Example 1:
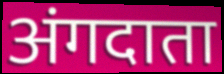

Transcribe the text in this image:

अंगदाता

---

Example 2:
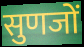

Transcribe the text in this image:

सुणजों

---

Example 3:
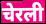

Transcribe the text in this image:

चेरली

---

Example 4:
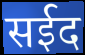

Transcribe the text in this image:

सईद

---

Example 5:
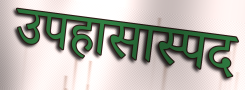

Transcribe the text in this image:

उपहासास्पद